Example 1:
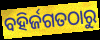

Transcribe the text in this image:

ବହିର୍ଜଗତଠାରୁ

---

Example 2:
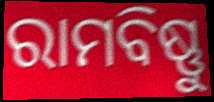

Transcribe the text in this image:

ରାମବିଷ୍ଣୁ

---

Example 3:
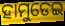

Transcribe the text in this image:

ହାମୁଡେଇ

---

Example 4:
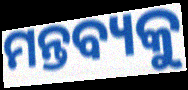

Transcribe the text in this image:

ମନ୍ତବ୍ୟକୁ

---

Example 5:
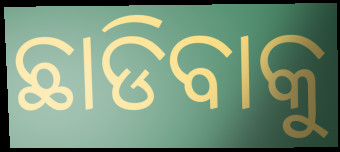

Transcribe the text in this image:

ଛାଡିବାକୁ